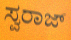
ಸ್ವರಾಜ್